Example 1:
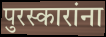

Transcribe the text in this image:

पुरस्कारांना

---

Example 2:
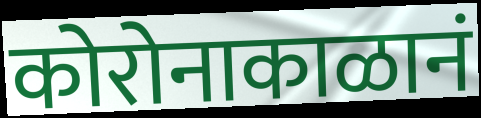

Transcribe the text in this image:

कोरोनाकाळानं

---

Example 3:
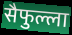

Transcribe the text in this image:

सैफुल्ला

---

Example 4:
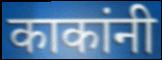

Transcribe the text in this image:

काकांनी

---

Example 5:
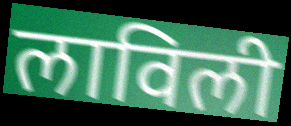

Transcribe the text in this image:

लाविली